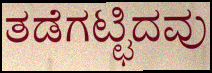
ತಡೆಗಟ್ಟಿದವು